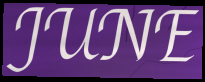
JUNE